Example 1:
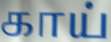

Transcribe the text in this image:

காய்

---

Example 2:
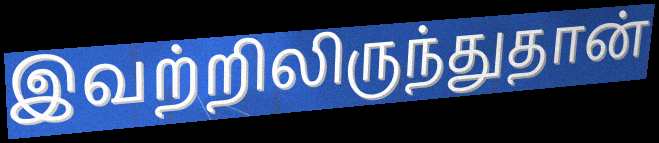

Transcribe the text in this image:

இவற்றிலிருந்துதான்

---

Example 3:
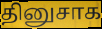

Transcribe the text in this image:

தினுசாக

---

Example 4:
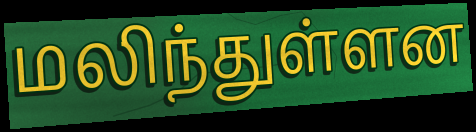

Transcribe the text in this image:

மலிந்துள்ளன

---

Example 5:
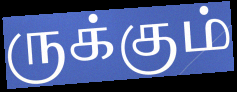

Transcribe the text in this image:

ருக்கும்